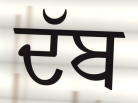
ਦੱਬ